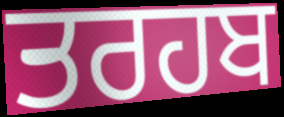
ਤਰਹਬ